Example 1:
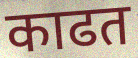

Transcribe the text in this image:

काढत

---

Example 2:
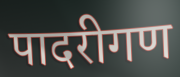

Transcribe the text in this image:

पादरीगण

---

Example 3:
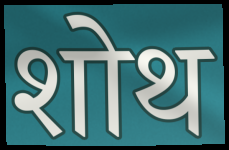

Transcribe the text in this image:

शोथ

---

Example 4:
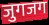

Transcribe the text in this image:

जुगजग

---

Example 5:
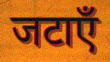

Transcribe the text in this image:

जटाएँ